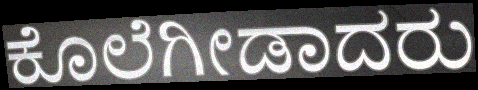
ಕೊಲೆಗೀಡಾದರು